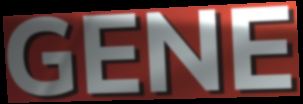
GENE